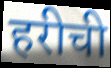
हरीची